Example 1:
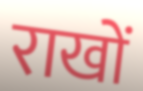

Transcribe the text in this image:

राखों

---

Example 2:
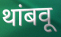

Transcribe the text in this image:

थांबवू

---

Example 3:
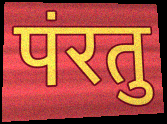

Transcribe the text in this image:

पंरतु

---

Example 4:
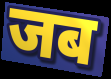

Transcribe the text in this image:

जब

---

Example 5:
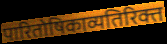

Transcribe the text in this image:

पारितोषिकाव्यतिरिक्त